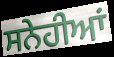
ਸਨੇਹੀਆਂ